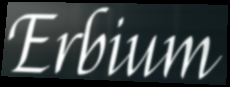
Erbium